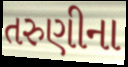
તરુણીના